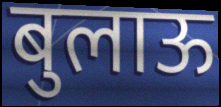
बुलाऊ